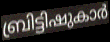
ബ്രിട്ടിഷുകാർ